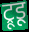
ट्रूडू